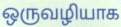
ஒருவழியாக